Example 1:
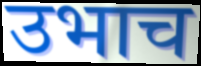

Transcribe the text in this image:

उभाच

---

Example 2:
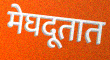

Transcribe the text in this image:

मेघदूतात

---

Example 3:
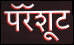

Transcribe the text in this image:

पॅरॅशूट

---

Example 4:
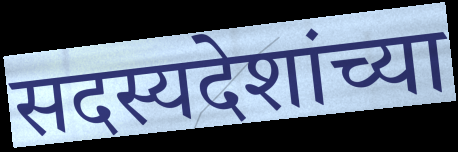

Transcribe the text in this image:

सदस्यदेशांच्या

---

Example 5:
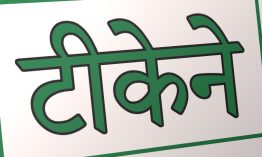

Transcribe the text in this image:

टीकेने